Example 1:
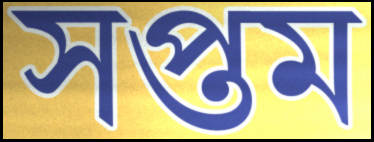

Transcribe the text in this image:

সপ্তম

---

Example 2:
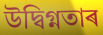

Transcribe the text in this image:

উদ্বিগ্নতাৰ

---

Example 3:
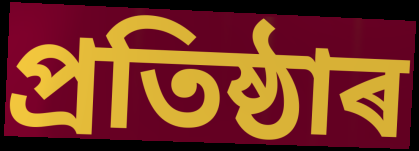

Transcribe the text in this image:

প্ৰতিষ্ঠাৰ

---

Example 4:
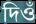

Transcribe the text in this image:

দিওঁ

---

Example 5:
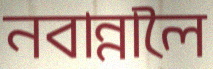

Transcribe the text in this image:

নবান্নালৈ